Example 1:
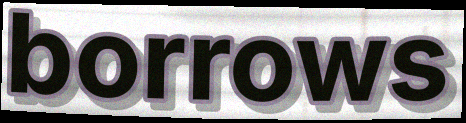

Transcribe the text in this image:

borrows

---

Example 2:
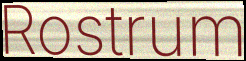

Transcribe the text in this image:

Rostrum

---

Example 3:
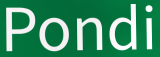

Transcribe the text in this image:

Pondi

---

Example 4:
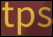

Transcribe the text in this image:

tps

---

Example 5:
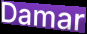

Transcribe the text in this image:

Damar